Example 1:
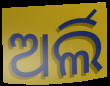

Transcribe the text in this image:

ଅର୍ଲି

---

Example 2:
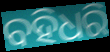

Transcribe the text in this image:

ବହିଧରି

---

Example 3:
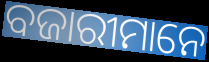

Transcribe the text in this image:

ବଜାରୀମାନେ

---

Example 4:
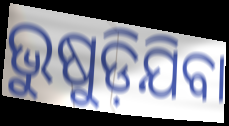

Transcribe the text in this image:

ଭୁଷୁଡ଼ିଯିବା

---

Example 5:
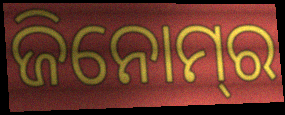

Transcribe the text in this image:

ଜିନୋମ୍‌ର